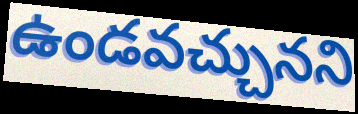
ఉండవచ్చునని